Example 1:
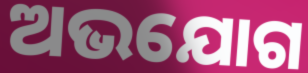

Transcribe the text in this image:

ଅଭଯୋଗ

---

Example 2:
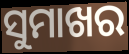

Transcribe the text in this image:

ସୁମାଖର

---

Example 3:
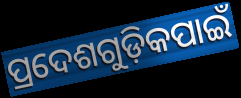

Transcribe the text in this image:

ପ୍ରଦେଶଗୁଡ଼ିକପାଇଁ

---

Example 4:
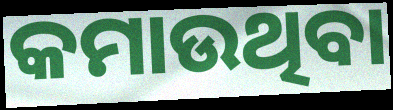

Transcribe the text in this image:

କମାଉଥିବା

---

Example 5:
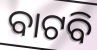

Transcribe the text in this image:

ବାଟବି